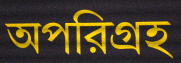
অপরিগ্রহ